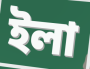
ইলা